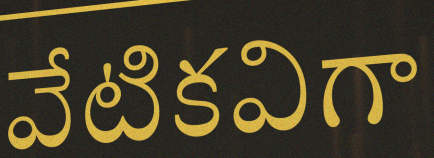
వేటికవిగా